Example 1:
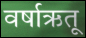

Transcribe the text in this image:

वर्षाऋतू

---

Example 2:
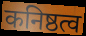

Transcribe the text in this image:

कनिष्ठत्व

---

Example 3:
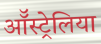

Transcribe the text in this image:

ऑॅस्ट्रेलिया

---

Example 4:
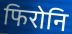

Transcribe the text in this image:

फिरोनि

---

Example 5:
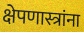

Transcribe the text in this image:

क्षेपणास्त्रांना